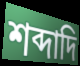
শব্দাদি